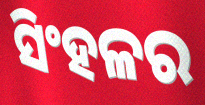
ସିଂହଳର